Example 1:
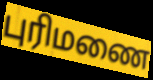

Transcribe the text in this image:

புரிமணை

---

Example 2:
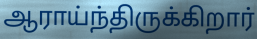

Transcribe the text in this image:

ஆராய்ந்திருக்கிறார்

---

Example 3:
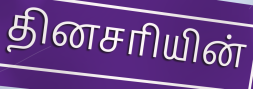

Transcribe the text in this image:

தினசரியின்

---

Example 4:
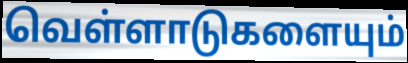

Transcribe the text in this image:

வெள்ளாடுகளையும்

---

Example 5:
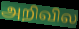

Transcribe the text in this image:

அறிவில